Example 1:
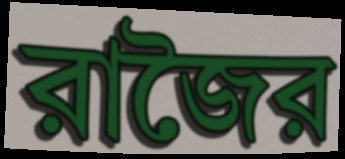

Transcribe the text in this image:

রাজৈর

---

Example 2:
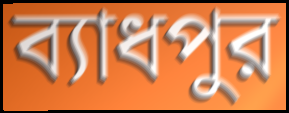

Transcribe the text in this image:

ব্যাধপুর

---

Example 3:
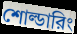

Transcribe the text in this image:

শোল্ডারিং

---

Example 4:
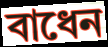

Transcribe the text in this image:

বাধেন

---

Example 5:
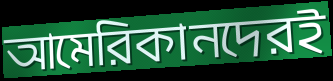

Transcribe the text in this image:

আমেরিকানদেরই